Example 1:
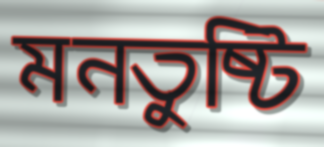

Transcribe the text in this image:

মনতুষ্টি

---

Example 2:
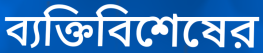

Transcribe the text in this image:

ব্যক্তিবিশেষের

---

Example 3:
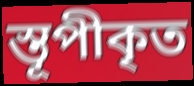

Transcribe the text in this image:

স্তূপীকৃত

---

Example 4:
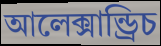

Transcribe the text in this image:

আলেক্সান্ড্রিচ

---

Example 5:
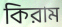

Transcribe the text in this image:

কিরাম